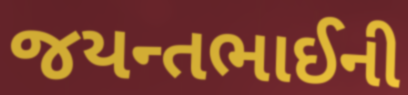
જયન્તભાઈની